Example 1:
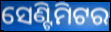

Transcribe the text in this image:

ସେଣ୍ଟିମିଟର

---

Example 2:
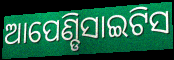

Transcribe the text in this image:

ଆପେଣ୍ଡିସାଇଟିସ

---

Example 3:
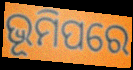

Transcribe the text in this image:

ଭୂମିପରେ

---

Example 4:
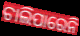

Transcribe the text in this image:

ଚାଲିପାରେନି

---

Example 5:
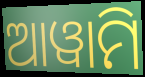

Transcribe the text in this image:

ଆୱାମି